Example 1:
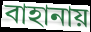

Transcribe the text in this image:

বাহানায়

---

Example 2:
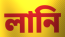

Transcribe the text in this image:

লানি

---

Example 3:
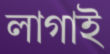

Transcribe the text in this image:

লাগাই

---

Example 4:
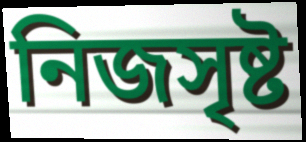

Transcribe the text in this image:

নিজসৃষ্ট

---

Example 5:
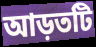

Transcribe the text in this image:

আড়তটি